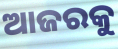
ଆଜରକୁ